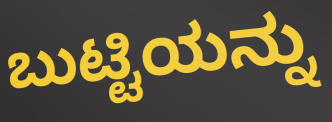
ಬುಟ್ಟಿಯನ್ನು